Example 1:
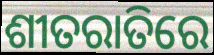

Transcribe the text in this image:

ଶୀତରାତିରେ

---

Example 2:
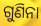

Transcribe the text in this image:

ଗୁଣିନା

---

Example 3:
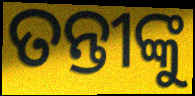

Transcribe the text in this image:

ତନ୍ତୀଙ୍କୁ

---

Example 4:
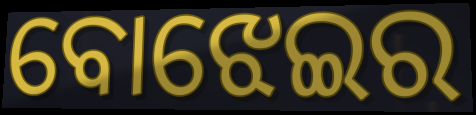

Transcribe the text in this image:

ବୋଝେଇର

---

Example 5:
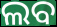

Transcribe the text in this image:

ଲବ